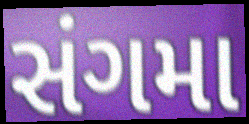
સંગમા